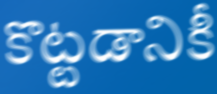
కొట్టడానికీ